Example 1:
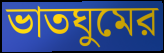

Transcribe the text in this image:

ভাতঘুমের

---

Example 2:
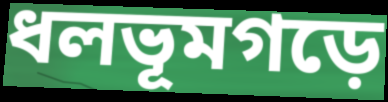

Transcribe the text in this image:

ধলভূমগড়ে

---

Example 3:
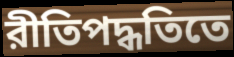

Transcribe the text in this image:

রীতিপদ্ধতিতে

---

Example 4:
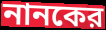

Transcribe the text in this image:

নানকের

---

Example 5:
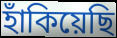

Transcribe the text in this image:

হাঁকিয়েছি